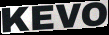
KEVO